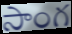
సాంగ